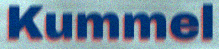
Kummel